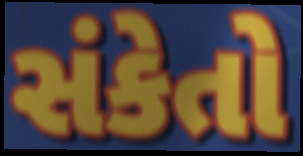
સંકેતો